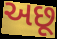
અછૂ